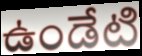
ఉండేటి